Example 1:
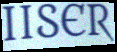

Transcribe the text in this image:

IISER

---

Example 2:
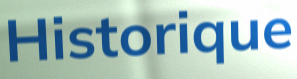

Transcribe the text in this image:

Historique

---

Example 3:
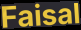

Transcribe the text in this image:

Faisal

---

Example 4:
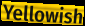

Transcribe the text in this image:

Yellowish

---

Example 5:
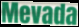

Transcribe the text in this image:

Mevada